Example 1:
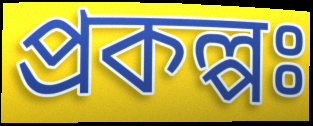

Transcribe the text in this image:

প্ৰকল্পঃ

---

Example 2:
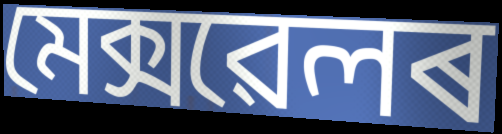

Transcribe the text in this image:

মেক্সৱেলৰ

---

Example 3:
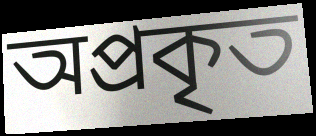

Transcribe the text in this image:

অপ্ৰকৃত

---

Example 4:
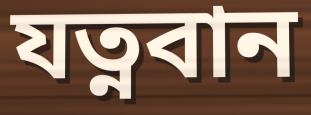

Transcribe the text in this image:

যত্নবান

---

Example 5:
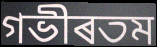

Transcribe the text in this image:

গভীৰতম